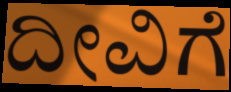
ದೀವಿಗೆ